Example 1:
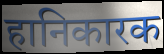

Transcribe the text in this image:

हानिकारक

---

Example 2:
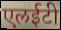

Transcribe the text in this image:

एलईटी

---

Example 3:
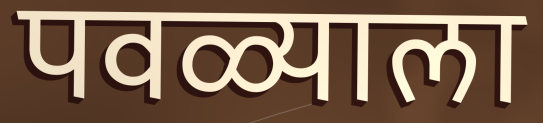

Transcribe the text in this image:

पवळ्याला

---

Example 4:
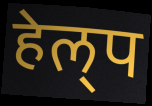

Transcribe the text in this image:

हेल्प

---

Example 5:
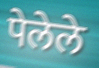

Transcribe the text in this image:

पेलेले